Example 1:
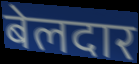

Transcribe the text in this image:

बेलदार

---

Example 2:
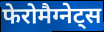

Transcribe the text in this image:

फेरोमैग्नेट्स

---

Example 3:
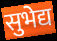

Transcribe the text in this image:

सुभेद्य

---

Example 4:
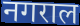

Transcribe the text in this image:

नगराल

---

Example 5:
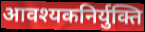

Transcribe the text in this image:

आवश्यकनिर्युक्ति